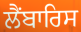
ਲੈਂਬਾਰਿਸ